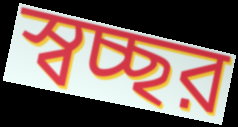
স্বচ্ছর